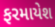
ફરમાયેશ